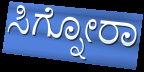
ಸಿಗ್ನೋರಾ